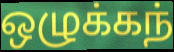
ஒழுக்கந்